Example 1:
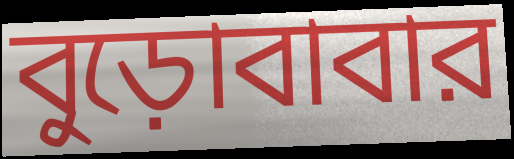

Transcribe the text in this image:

বুড়োবাবার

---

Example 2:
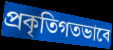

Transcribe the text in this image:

প্রকৃতিগতভাবে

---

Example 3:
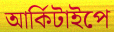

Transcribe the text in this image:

আর্কিটাইপে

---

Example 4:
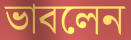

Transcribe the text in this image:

ভাবলেন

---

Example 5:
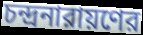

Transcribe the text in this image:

চন্দ্রনারায়ণের